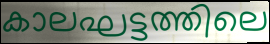
കാലഘട്ടത്തിലെ